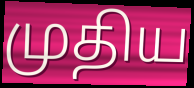
முதிய